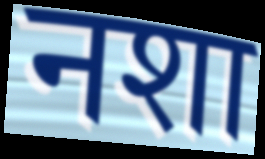
नशा